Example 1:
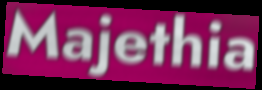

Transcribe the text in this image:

Majethia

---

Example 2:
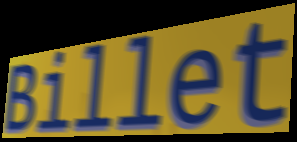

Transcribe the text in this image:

Billet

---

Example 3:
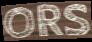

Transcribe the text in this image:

ORS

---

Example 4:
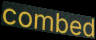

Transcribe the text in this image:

combed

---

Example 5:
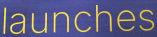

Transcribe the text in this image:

launches